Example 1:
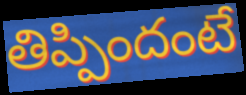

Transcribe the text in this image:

తిప్పిందంటే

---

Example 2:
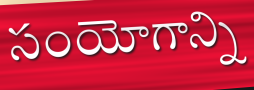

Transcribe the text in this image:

సంయోగాన్ని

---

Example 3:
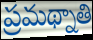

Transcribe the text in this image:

ప్రమథ్నాతి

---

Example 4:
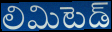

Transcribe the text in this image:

లిమిటెడ్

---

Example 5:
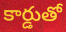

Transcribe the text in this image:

కార్డుతో